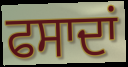
ਫਸਾਦਾਂ